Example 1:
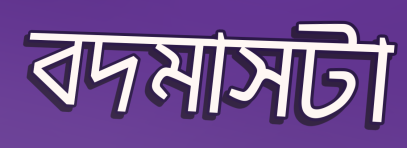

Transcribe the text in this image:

বদমাসটা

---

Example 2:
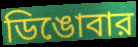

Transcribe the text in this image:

ডিঙোবার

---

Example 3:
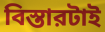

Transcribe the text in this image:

বিস্তারটাই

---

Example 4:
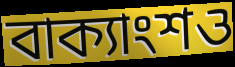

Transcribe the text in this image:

বাক্যাংশও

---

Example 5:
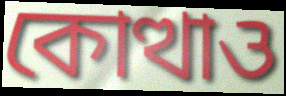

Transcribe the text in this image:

কোত্থাও